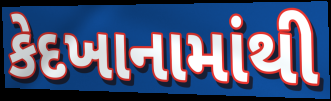
કેદખાનામાંથી